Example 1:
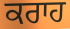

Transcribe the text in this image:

ਕਰਾਹ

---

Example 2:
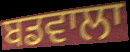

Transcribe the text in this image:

ਬਡਵਾਲਾ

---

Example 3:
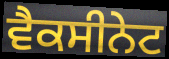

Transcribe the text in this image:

ਵੈਕਸੀਨੇਟ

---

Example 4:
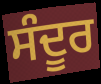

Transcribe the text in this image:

ਸੰਦੂਰ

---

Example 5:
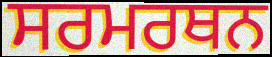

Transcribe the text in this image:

ਸਰਮਰਥਨ